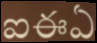
ఐఈఏ